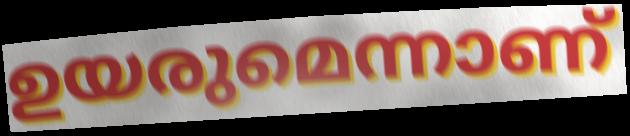
ഉയരുമെന്നാണ്